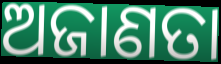
ଅଜାଣତା